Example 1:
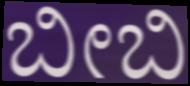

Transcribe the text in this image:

ಬೀಬಿ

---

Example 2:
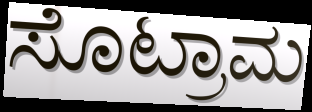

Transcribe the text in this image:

ಸೊಟ್ರಾಮ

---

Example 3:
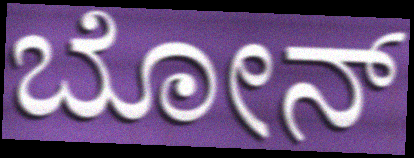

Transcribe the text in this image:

ಬೋನ್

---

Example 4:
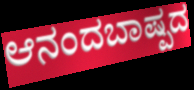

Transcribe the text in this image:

ಆನಂದಬಾಷ್ಪದ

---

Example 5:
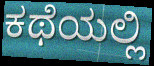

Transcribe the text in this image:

ಕಥೆಯಲ್ಲಿ